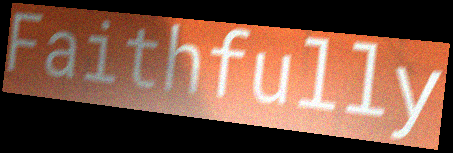
Faithfully